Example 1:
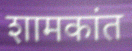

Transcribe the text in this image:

शामकांत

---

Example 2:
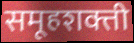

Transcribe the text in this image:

समूहशक्ती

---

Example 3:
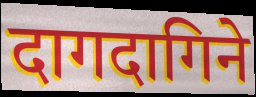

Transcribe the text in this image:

दागदागिने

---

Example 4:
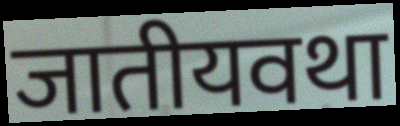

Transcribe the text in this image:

जातीयवथा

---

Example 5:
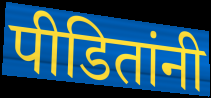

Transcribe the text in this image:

पीडितांनी